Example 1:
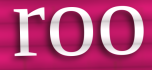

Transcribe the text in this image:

roo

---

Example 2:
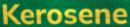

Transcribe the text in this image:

Kerosene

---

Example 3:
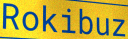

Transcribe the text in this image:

Rokibuz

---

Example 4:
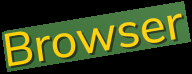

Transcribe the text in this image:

Browser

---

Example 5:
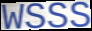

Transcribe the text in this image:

WSSS